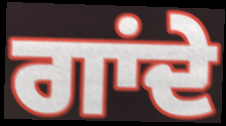
ਗਾਂਦੇ